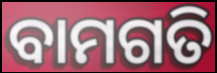
ବାମଗତି